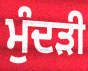
ਮੁੰਦੜੀ